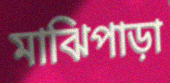
মাঝিপাড়া